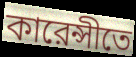
কারেন্সীতে